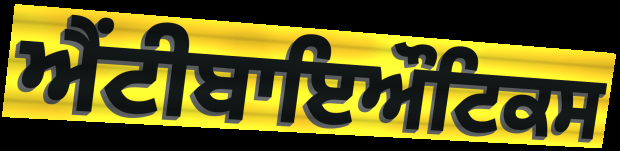
ਐਂਟੀਬਾਇਔਟਿਕਸ